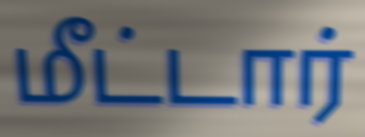
மீட்டார்